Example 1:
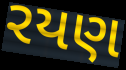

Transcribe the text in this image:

રયણ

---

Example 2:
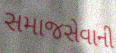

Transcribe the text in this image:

સમાજસેવાની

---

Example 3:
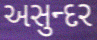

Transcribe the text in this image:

અસુન્દર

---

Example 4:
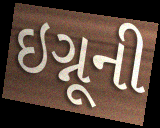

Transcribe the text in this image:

ઇગ્નૂની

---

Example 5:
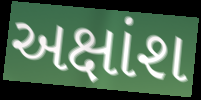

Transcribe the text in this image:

અક્ષાંશ